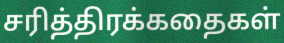
சரித்திரக்கதைகள்